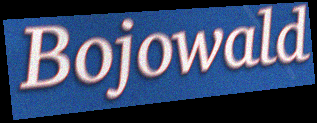
Bojowald